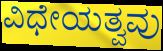
ವಿಧೇಯತ್ವವು